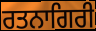
ਰਤਨਾਗਿਰੀ